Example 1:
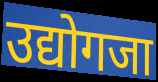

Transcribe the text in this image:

उद्योगजा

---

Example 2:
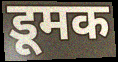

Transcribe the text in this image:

डूमक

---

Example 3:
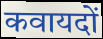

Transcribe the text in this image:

कवायदों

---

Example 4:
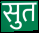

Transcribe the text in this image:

सुत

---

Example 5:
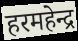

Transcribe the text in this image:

हरमहेन्द्र